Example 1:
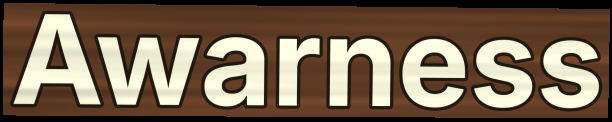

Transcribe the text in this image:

Awarness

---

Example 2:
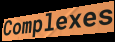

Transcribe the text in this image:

Complexes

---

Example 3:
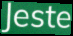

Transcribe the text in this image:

Jeste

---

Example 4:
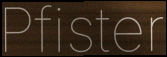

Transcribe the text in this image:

Pfister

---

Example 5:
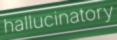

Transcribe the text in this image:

hallucinatory